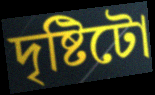
দৃষ্টিটো